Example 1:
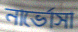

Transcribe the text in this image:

নার্ভোসা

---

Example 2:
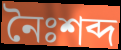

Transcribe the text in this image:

নৈঃশব্দ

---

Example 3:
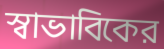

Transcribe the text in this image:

স্বাভাবিকের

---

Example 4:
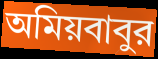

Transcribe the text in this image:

অমিয়বাবুর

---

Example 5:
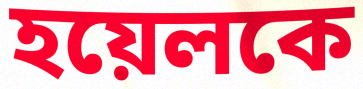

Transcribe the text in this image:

হয়েলকে